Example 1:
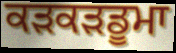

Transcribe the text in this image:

ਕੜਕੜਡੂਮਾ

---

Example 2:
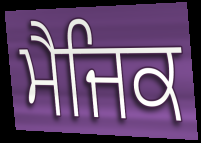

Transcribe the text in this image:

ਮੈਜਿਕ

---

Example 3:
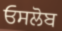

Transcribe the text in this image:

ਓਸਲੋਬ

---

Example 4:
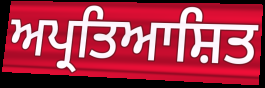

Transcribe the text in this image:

ਅਪ੍ਰਤਿਆਸ਼ਿਤ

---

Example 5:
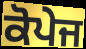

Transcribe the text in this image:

ਕੋਪੇਜ